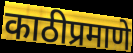
काठीप्रमाणे